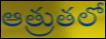
ఆత్రుతలో